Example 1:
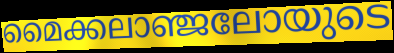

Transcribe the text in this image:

മൈക്കലാഞ്ജലോയുടെ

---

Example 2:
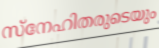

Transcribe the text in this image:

സ്നേഹിതരുടെയും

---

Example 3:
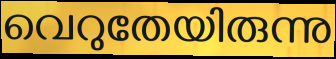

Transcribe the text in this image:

വെറുതേയിരുന്നു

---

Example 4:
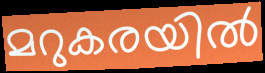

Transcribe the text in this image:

മറുകരയിൽ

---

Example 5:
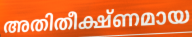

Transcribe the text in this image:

അതിതീക്ഷ്ണമായ